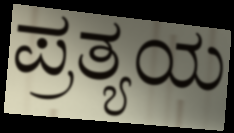
ಪ್ರತ್ಯಯ